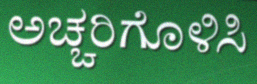
ಅಚ್ಚರಿಗೊಳಿಸಿ